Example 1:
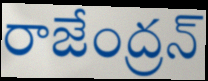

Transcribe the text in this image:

రాజేంద్రన్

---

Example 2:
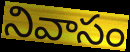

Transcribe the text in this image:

నివాసం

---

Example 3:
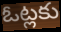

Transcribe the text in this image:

ఓట్లకు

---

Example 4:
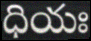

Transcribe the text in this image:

ధియః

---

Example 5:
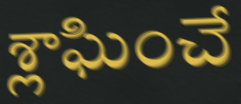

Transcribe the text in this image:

శ్లాఘించే